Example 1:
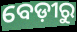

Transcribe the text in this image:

ବେଡ଼ୀରୁ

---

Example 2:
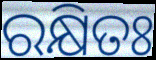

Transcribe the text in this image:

ରକ୍ଷିତଃ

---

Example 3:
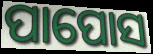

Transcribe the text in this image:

ପାପୋସ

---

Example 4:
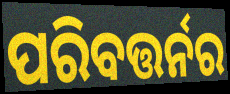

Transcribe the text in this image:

ପରିବତ୍ତର୍ନର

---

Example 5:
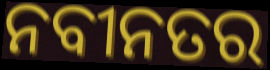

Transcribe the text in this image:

ନବୀନତର